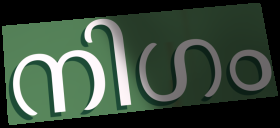
നിഗം